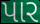
પાર